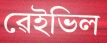
ৱেইভিল